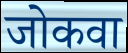
जोकवा